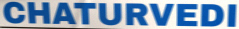
CHATURVEDI